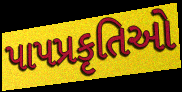
પાપપ્રકૃતિઓ